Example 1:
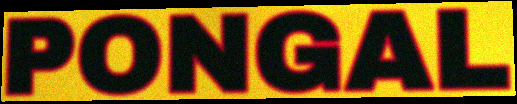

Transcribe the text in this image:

PONGAL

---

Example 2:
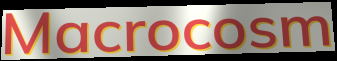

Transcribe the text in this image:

Macrocosm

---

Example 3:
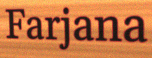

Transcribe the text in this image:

Farjana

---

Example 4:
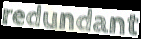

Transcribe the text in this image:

redundant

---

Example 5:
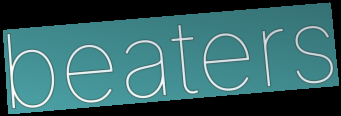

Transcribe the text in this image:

beaters